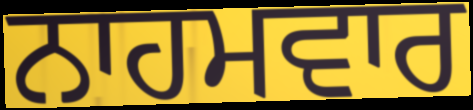
ਨਾਹਮਵਾਰ